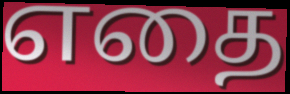
எதை